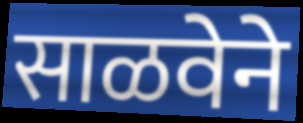
साळवेने